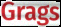
Grags